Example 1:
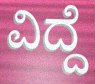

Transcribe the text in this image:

ವಿದ್ದೆ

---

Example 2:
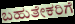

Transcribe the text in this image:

ಬಹುತೇಕರಿಗೆ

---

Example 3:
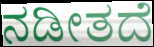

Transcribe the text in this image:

ನಡೀತದೆ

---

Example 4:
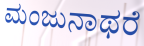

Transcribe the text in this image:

ಮಂಜುನಾಥರೆ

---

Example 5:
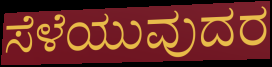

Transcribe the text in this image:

ಸೆಳೆಯುವುದರ